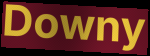
Downy